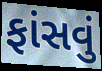
ફાંસવું